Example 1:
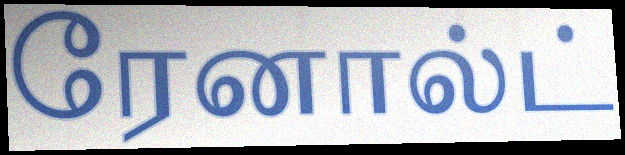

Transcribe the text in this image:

ரேனால்ட்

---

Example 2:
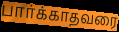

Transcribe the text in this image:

பார்க்காதவரை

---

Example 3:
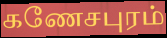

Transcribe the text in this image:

கணேசபுரம்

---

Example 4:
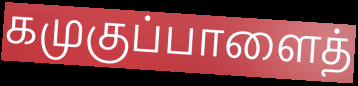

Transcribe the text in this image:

கமுகுப்பாளைத்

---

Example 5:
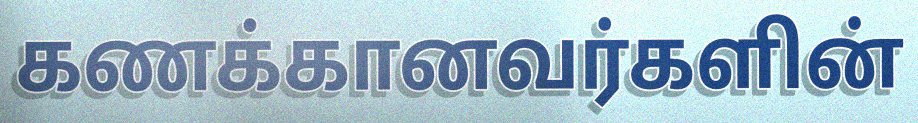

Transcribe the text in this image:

கணக்கானவர்களின்